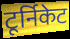
टूर्निकेट